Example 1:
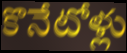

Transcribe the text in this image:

కొనేటోళ్లు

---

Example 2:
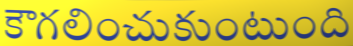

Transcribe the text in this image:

కౌగలించుకుంటుంది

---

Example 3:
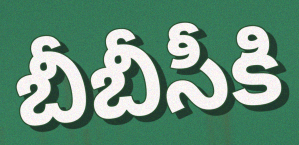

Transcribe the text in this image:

బీబీసీకి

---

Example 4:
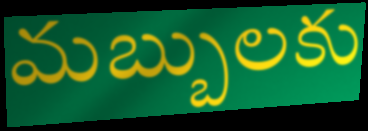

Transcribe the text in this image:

మబ్బులకు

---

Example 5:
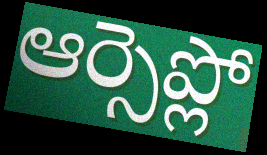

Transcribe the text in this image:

ఆర్సెప్లో